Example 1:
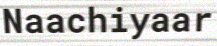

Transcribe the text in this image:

Naachiyaar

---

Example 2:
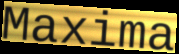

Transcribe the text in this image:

Maxima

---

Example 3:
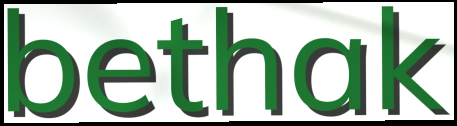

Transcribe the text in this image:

bethak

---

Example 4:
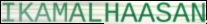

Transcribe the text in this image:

IKAMALHAASAN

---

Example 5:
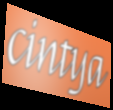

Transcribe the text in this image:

cintya